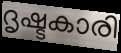
ദൃഷ്ടകാരി